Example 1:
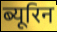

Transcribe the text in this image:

ब्यूरिन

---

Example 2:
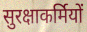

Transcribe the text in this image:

सुरक्षाकर्मियों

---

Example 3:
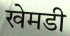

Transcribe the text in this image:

खेमडी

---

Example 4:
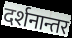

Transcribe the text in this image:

दर्शनान्तर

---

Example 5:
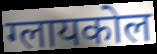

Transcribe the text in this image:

ग्लायकोल